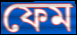
ফেম